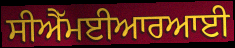
ਸੀਐੱਮਈਆਰਆਈ